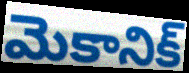
మెకానిక్